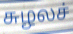
சுழலச்